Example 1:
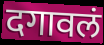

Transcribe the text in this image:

दगावलं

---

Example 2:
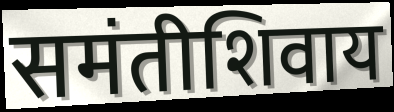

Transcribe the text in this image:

समंतीशिवाय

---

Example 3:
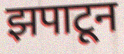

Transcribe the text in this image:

झपाटून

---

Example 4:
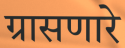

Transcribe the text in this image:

ग्रासणारे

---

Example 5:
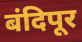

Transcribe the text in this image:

बंदिपूर